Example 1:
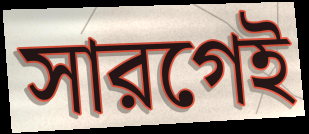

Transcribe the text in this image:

সারগেই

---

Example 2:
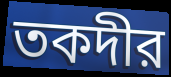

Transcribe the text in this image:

তকদীর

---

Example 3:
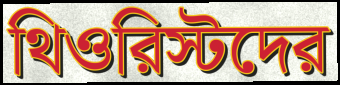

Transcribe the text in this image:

থিওরিস্টদের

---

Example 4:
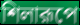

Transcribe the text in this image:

শিলারূপে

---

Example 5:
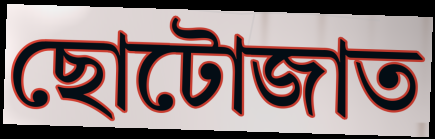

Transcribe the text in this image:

ছোটোজাত